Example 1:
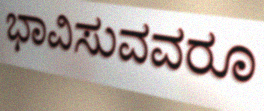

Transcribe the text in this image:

ಭಾವಿಸುವವರೂ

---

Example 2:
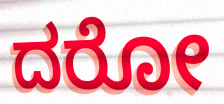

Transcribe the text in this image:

ದರೋ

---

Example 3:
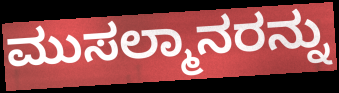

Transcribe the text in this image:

ಮುಸಲ್ಮಾನರನ್ನು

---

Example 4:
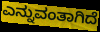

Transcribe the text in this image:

ಎನ್ನುವಂತಾಗಿದೆ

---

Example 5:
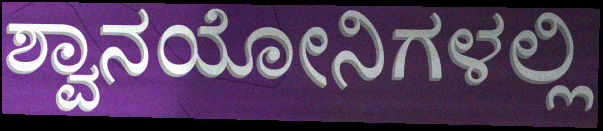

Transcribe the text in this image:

ಶ್ವಾನಯೋನಿಗಳಲ್ಲಿ